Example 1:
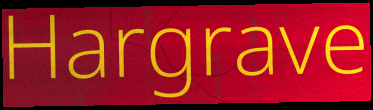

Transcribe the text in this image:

Hargrave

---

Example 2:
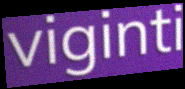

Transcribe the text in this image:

viginti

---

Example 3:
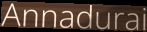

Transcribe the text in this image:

Annadurai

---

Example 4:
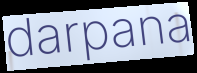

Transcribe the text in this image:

darpana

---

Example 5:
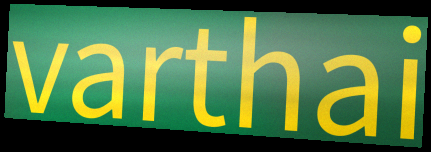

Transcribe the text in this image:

varthai